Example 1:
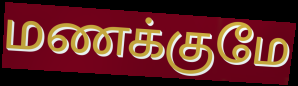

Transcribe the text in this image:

மணக்குமே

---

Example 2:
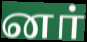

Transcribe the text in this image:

னர்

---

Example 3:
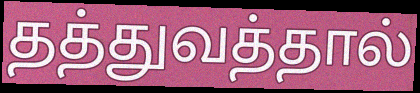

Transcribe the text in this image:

தத்துவத்தால்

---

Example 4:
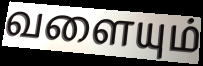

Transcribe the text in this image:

வளையும்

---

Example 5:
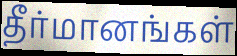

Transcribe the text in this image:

தீர்மானங்கள்